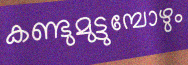
കണ്ടുമുട്ടുമ്പോഴും